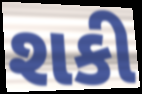
શકી